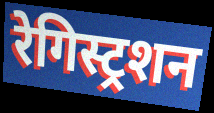
रेगिस्ट्रशन